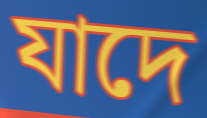
যাদে